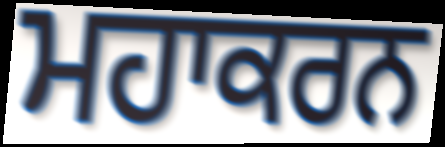
ਮਹਾਕਰਨ